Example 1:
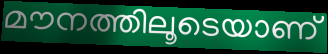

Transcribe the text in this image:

മൗനത്തിലൂടെയാണ്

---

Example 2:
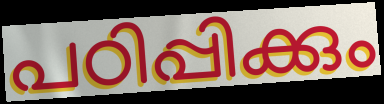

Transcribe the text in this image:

പഠിപ്പിക്കും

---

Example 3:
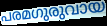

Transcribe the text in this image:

പരമഗുരുവായ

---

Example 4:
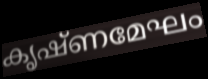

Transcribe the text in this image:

കൃഷ്ണമേഘം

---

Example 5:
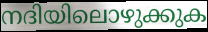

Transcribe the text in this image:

നദിയിലൊഴുക്കുക